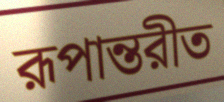
রূপান্তরীত